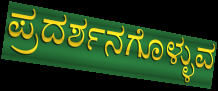
ಪ್ರದರ್ಶನಗೊಳ್ಳುವ